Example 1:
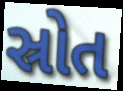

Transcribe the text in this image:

સ્રોત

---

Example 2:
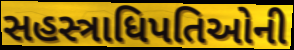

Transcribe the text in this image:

સહસ્ત્રાધિપતિઓની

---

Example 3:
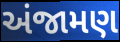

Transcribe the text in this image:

અંજામણ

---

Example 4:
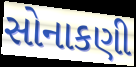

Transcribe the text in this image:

સોનાકણી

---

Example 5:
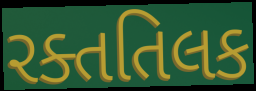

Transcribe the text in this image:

રક્તતિલક